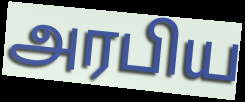
அரபிய